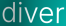
diver